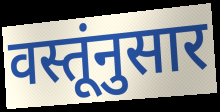
वस्तूंनुसार